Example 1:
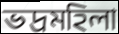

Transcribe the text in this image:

ভদ্ৰমহিলা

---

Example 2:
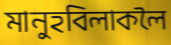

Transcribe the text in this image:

মানুহবিলাকলৈ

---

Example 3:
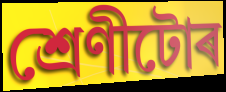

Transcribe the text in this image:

শ্ৰেণীটোৰ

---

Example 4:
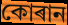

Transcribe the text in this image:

কোৰান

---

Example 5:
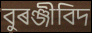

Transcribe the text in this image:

বুৰঞ্জীবিদ